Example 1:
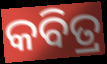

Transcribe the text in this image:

କବିତ୍ର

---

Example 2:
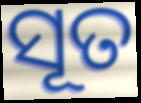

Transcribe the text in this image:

ସୂତ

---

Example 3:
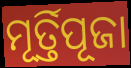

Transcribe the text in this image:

ମୂର୍ତ୍ତିପୂଜା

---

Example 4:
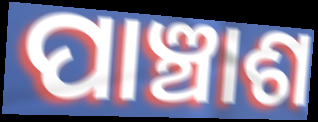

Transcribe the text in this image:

ପାଞ୍ଚାଶ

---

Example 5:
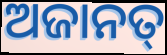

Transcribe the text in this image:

ଅଜାନତ୍